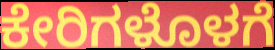
ಕೇರಿಗಳೊಳಗೆ